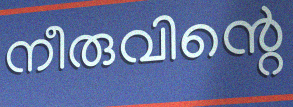
നീരുവിന്റെ